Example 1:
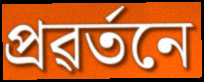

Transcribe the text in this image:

প্ৰৱৰ্তনে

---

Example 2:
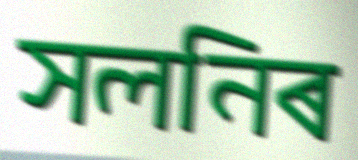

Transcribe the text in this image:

সলনিৰ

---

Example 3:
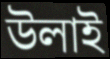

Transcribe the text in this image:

উলাই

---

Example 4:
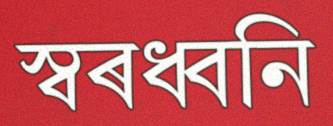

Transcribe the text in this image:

স্বৰধ্বনি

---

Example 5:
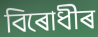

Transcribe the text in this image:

বিৰোধীৰ